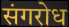
संगरोध